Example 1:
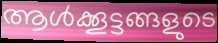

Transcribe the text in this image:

ആൾക്കൂട്ടങ്ങളുടെ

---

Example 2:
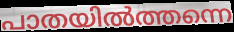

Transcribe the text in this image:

പാതയിൽത്തന്നെ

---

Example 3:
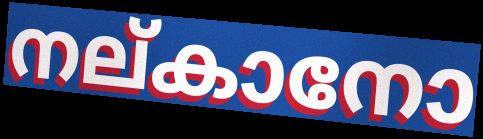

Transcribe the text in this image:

നല്കാനോ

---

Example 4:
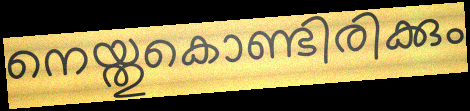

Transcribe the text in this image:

നെയ്തുകൊണ്ടിരിക്കും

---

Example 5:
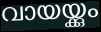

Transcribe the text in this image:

വായയ്ക്കും